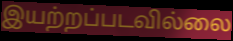
இயற்றப்படவில்லை